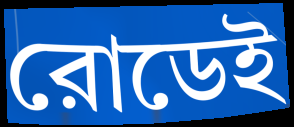
রোডেই